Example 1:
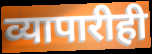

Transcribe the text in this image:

व्यापारीही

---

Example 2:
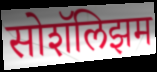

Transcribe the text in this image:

सोशॅलिझम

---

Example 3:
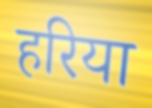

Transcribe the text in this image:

हरिया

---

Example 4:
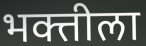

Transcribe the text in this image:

भक्तीला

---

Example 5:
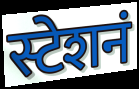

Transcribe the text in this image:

स्टेशनं